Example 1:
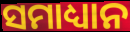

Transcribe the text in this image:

ସମାଧ୍ୟାନ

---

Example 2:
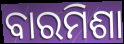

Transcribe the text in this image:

ବାରମିଶା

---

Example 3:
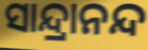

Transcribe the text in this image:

ସାନ୍ଦ୍ରାନନ୍ଦ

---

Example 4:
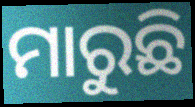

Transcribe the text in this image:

ମାରୁଛି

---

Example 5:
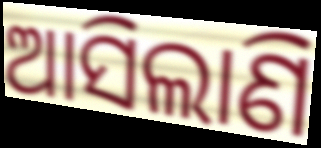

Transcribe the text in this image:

ଆସିଲାଣି